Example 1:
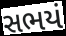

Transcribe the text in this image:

સભયં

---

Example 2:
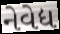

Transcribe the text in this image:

નેવેદ્ય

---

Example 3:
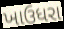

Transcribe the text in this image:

ખાઉધરા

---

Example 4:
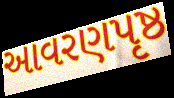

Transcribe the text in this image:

આવરણપૃષ્ઠ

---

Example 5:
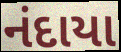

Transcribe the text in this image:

નંદાયા